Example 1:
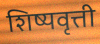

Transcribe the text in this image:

शिष्यवृत्ती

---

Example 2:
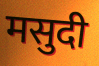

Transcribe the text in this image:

मसुदी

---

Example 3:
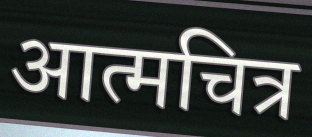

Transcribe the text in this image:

आत्मचित्र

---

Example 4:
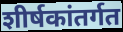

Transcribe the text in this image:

शीर्षकांतर्गत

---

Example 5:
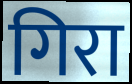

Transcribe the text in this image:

गिरा